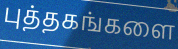
புத்தகங்களை